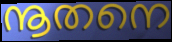
നൂതനെ